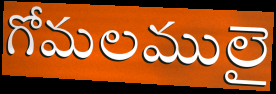
గోమలములై